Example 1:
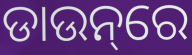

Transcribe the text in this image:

ଡାଉନ୍‌ରେ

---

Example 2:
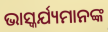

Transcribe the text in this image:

ଭାସ୍କର୍ଯ୍ୟମାନଙ୍କ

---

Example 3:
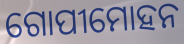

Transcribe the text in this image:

ଗୋପୀମୋହନ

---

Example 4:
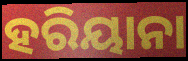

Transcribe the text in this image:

ହରିୟାନା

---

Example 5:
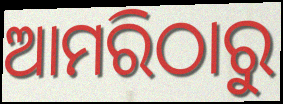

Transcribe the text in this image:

ଆମରିଠାରୁ